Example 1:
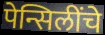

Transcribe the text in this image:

पेन्सिलींचे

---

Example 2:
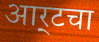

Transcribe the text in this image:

आर्टचा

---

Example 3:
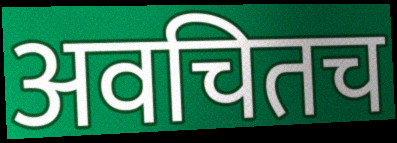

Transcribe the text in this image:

अवचितच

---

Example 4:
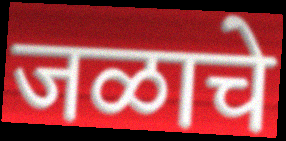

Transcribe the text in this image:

जळाचे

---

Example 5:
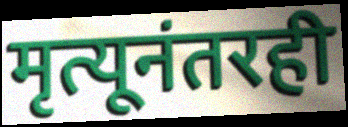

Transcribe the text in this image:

मृत्यूनंतरही